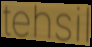
tehsil